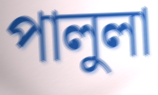
পালুলা